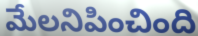
మేలనిపించింది